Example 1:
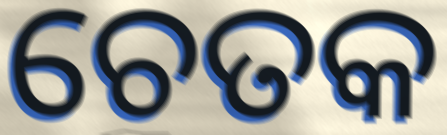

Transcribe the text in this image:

ଚେତକ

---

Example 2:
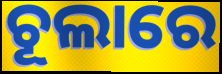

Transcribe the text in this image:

ଚୂଲାରେ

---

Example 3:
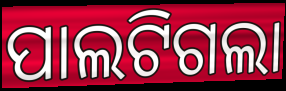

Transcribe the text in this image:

ପାଲଟିଗଲା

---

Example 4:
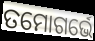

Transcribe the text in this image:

ତମୋଗର୍ଭେ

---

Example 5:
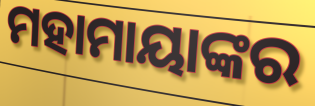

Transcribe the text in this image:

ମହାମାୟାଙ୍କର